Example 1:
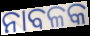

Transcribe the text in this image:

ନାବଳକ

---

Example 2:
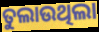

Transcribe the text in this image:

ତୁଲାଉଥିଲା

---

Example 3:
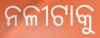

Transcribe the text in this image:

ନଳୀଟାକୁ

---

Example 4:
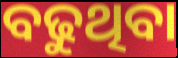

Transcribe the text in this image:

ବଢୁଥିବା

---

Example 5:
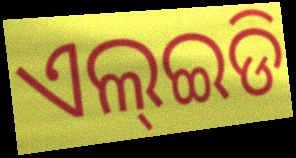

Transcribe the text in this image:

ଏଲ୍ଇଡି